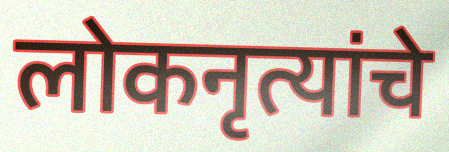
लोकनृत्यांचे